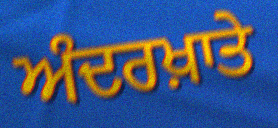
ਅੰਦਰਖ਼ਾਤੇ